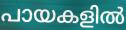
പായകളിൽ